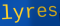
lyres